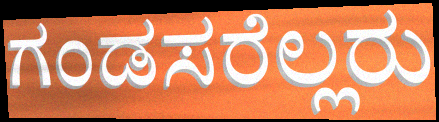
ಗಂಡಸರೆಲ್ಲರು